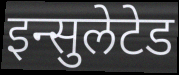
इन्सुलेटेड